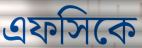
এফসিকে